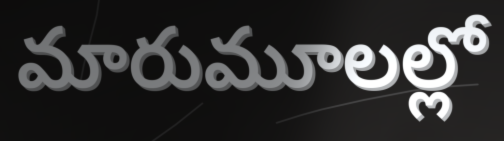
మారుమూలల్లో